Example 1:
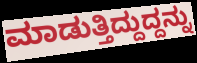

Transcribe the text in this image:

ಮಾಡುತ್ತಿದ್ದುದ್ದನ್ನು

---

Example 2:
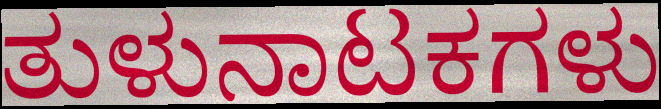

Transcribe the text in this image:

ತುಳುನಾಟಕಗಳು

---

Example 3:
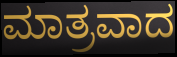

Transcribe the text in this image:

ಮಾತ್ರವಾದ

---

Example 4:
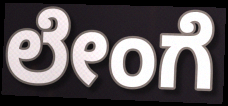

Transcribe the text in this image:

ಲೇಂಗೆ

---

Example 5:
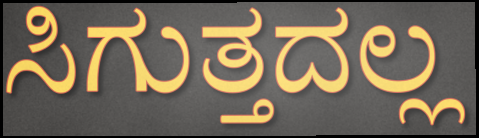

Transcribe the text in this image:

ಸಿಗುತ್ತದಲ್ಲ